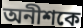
অনীশকে